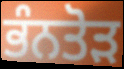
ਭੰਨਤੋੜ